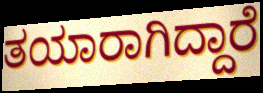
ತಯಾರಾಗಿದ್ದಾರೆ